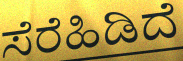
ಸೆರೆಹಿಡಿದೆ